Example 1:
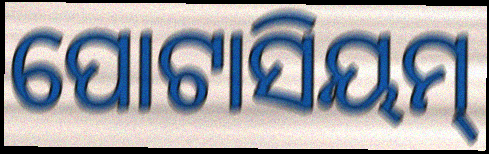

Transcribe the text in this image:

ପୋଟାସିୟମ୍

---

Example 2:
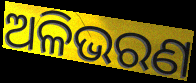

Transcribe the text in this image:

ଅଳିଭରଣ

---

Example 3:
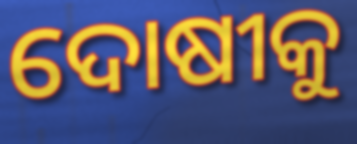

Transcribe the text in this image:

ଦୋଷୀକୁ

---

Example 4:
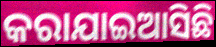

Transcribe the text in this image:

କରାଯାଇଆସିଛି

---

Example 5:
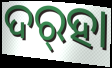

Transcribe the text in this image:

ଦର୍‌ହା